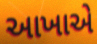
આખાએ